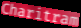
Charitram